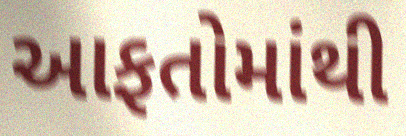
આફતોમાંથી